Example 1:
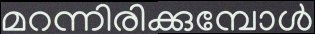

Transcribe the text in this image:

മറന്നിരിക്കുമ്പോൾ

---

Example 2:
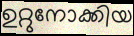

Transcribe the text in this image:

ഉറ്റുനോക്കിയ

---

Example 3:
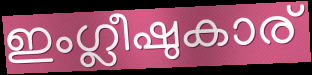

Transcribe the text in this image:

ഇംഗ്ലീഷുകാര്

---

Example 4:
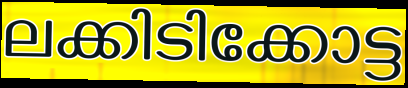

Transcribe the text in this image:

ലക്കിടിക്കോട്ട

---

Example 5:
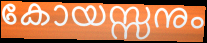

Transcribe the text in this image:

കോയസ്സനും